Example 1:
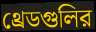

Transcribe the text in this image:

থ্রেডগুলির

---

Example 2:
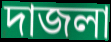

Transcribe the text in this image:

দাজলা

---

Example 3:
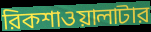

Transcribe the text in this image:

রিকশাওয়ালাটার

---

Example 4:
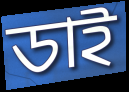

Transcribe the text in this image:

ডাই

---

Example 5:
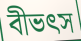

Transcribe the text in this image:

বীভৎস